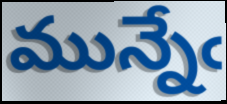
మున్నేఁ